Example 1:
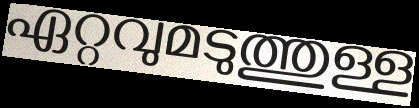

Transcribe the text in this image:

ഏറ്റവുമടുത്തുള്ള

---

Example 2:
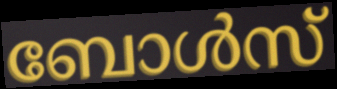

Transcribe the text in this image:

ബോൾസ്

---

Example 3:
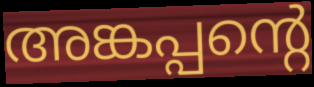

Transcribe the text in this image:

അങ്കപ്പന്റെ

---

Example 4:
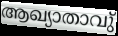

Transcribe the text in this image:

ആഖ്യാതാവു്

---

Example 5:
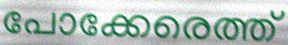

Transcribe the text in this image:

പോക്കേരെത്ത്